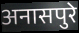
अनासपुरे